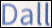
Dall